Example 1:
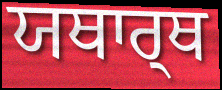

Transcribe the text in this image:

ਯਥਾਰ੍ਥ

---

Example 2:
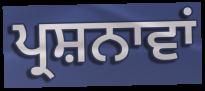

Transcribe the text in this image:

ਪ੍ਰਸ਼ਨਾਵਾਂ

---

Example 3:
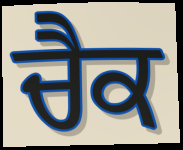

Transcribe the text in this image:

ਚੈਕ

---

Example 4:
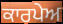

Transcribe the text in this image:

ਕਾਰਪੇਅ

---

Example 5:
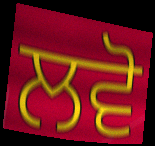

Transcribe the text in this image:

ਲਵੋ